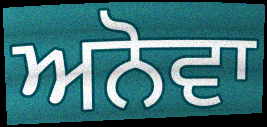
ਅਨੋਵਾ